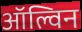
ऑल्विन